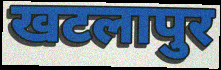
खटलापुर